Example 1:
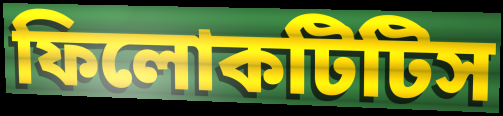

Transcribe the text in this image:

ফিলোকটিটিস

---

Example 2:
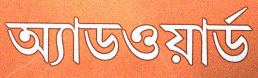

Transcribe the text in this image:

অ্যাডওয়ার্ড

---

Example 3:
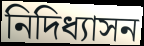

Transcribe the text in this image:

নিদিধ্যাসন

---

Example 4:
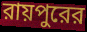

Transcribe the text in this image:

রায়পুরের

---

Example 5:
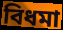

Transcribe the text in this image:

বিধমা